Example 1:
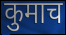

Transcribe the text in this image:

कुमाच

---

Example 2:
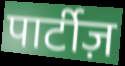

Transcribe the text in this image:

पार्टीज़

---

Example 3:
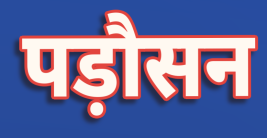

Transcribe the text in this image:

पड़ौसन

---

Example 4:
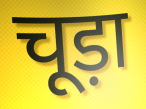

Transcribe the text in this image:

चूड़ा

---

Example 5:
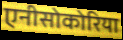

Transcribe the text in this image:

एनीसोकोरिया